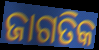
ଜାଗତିକ